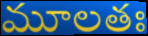
మూలతః